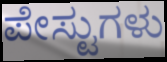
ಪೇಸ್ಟುಗಳು